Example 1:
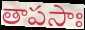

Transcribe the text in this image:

తాపసాః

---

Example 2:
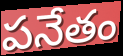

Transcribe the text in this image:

పనేతం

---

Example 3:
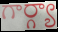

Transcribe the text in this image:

గార్గ్యా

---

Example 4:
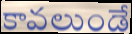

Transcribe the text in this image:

కావలుండే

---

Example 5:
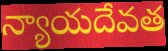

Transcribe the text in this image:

న్యాయదేవత